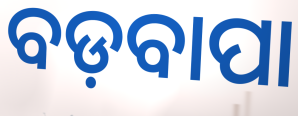
ବଡ଼ବାପା